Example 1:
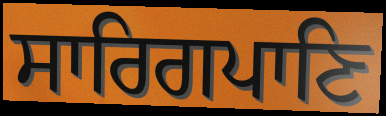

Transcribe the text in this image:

ਸਾਰਿਗਪਾਣਿ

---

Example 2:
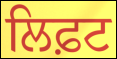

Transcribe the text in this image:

ਲਿਫ਼ਟ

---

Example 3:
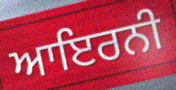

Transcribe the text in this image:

ਆਇਰਨੀ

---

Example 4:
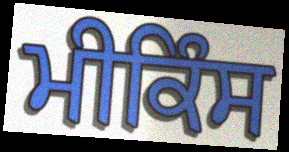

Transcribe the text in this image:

ਮੀਕਿੰਸ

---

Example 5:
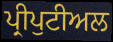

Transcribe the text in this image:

ਪ੍ਰੀਪੁਟੀਅਲ